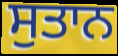
ਸੁਤਾਨ